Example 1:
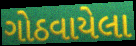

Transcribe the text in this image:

ગોઠવાયેલા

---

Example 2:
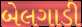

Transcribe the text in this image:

બેલગાડી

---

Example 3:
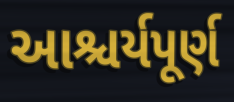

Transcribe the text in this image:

આશ્ચર્યપૂર્ણ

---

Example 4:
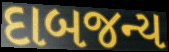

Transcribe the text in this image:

દાબજન્ય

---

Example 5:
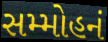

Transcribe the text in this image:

સમ્મોહનં